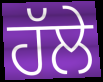
ਹੱਲੇ